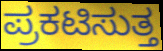
ಪ್ರಕಟಿಸುತ್ತ